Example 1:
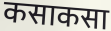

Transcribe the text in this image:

कसाकसा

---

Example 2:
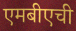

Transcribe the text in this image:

एमबीएची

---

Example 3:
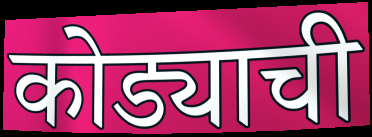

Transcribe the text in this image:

कोड्याची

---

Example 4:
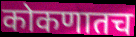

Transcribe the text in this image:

कोकणातच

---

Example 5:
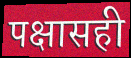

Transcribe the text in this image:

पक्षासही